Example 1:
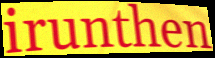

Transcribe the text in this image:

irunthen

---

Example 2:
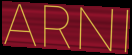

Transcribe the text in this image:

ARNI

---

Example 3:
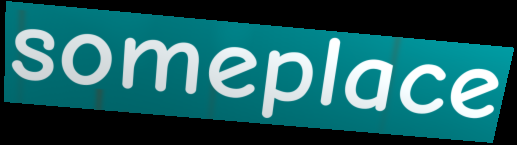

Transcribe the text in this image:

someplace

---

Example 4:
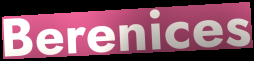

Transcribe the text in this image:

Berenices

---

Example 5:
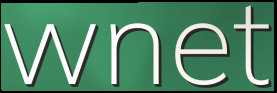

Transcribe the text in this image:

wnet